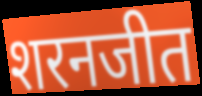
शरनजीत